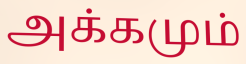
அக்கமும்